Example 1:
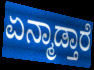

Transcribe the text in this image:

ಏನ್ಮಾಡ್ತಾರೆ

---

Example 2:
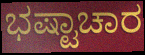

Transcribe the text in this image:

ಭಷ್ಟಾಚಾರ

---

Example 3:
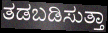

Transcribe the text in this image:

ತಡಬಡಿಸುತ್ತಾ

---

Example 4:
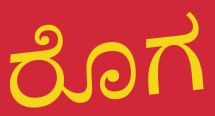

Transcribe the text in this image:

ರೊಗ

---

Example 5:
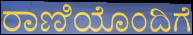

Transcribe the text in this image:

ರಾಣಿಯೊಂದಿಗೆ